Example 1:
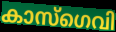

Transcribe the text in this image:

കാസ്ഗെവി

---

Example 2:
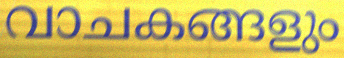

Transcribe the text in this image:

വാചകങ്ങളും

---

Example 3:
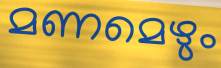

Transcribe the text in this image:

മണമെഴും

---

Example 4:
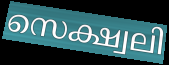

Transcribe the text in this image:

സെക്ഷ്വലി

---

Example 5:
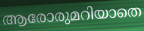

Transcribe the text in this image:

ആരോരുമറിയാതെ